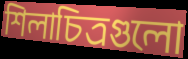
শিলাচিত্রগুলো